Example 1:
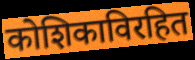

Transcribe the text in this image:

कोशिकाविरहित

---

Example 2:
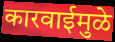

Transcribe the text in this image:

कारवाईमुळे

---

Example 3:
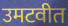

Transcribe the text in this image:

उमटवीत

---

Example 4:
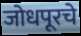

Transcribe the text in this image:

जोधपूरचे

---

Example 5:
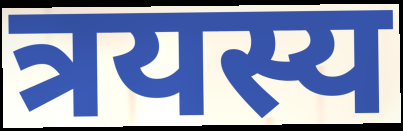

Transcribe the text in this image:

त्रयस्य